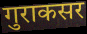
गुराकसर